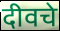
दीवचे